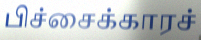
பிச்சைக்காரச்